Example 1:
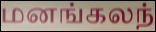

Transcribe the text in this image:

மனங்கலந்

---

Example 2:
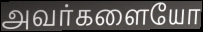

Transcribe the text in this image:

அவர்களையோ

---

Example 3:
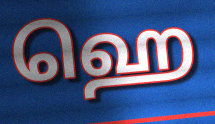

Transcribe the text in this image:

ஹெ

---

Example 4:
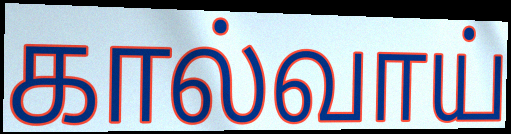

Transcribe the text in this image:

கால்வாய்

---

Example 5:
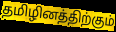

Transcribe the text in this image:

தமிழினத்திற்கும்